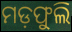
ମଡ଼ଫୁଲି